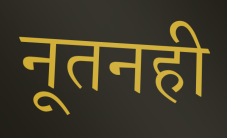
नूतनही